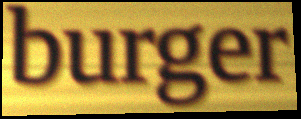
burger